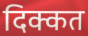
दिक्कत